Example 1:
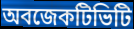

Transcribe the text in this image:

অবজেকটিভিটি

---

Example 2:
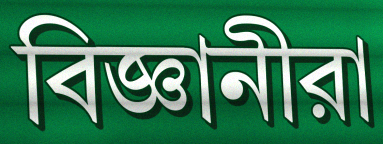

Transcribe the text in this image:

বিজ্ঞানীরা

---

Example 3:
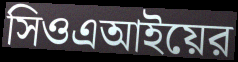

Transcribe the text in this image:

সিওএআইয়ের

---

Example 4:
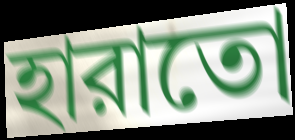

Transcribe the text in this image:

হারাতো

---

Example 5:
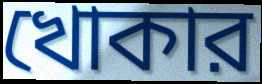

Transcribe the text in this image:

খোকার